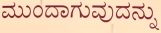
ಮುಂದಾಗುವುದನ್ನು